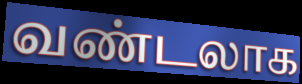
வண்டலாக